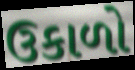
ઉકાળો